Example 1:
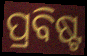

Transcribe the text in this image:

ପ୍ରବିଷ୍ଟ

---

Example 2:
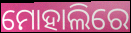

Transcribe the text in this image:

ମୋହାଲିରେ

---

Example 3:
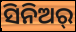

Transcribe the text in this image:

ସିନିଅର୍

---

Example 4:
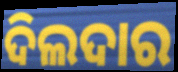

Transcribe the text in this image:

ଦିଲଦାର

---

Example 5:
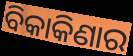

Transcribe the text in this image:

ବିକାକିଣାର